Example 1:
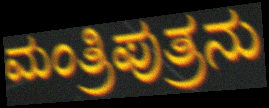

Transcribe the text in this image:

ಮಂತ್ರಿಪುತ್ರನು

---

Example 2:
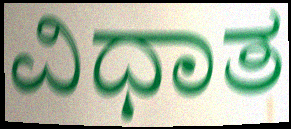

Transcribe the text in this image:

ವಿಧಾತ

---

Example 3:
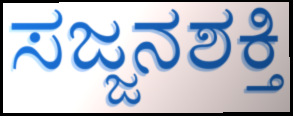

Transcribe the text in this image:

ಸಜ್ಜನಶಕ್ತಿ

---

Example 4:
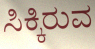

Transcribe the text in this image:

ಸಿಕ್ಕಿರುವ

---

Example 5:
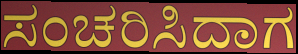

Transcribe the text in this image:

ಸಂಚರಿಸಿದಾಗ